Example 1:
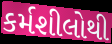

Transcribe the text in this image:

કર્મશીલોથી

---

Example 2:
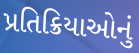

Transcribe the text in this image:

પ્રતિક્રિયાઓનું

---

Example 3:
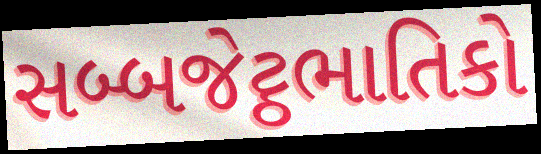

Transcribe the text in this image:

સબ્બજેટ્ઠભાતિકો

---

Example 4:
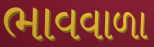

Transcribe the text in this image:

ભાવવાળા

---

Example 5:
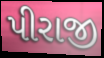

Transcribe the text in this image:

પીરાજી